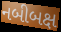
નબીબક્ષ